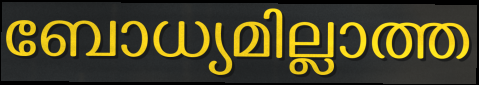
ബോധ്യമില്ലാത്ത